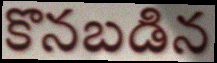
కొనబడిన